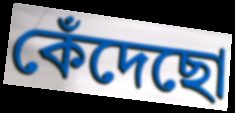
কেঁদেছো